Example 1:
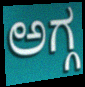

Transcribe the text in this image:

ಅಗ್ಗ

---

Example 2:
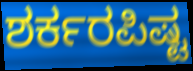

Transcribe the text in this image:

ಶರ್ಕರಪಿಷ್ಟ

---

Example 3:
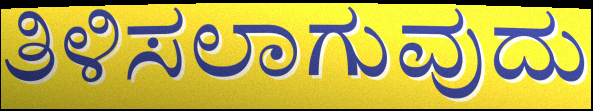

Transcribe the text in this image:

ತಿಳಿಸಲಾಗುವುದು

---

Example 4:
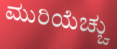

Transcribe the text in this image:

ಮುರಿಯೆಚ್ಚು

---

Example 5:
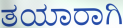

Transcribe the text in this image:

ತಯಾರಾಗಿ